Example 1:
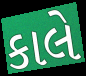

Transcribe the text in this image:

કાલે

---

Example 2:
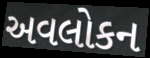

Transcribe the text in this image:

અવલોકન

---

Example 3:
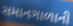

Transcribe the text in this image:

સમાનગાળાની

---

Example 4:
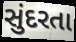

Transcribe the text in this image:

સુંદરતા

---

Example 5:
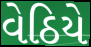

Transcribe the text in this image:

વેઠિયે